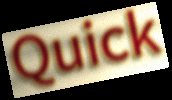
Quick